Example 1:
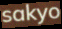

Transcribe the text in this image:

sakyo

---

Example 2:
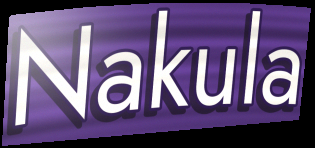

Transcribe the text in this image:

Nakula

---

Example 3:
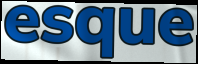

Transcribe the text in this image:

esque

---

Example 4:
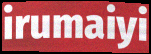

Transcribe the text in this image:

irumaiyi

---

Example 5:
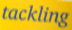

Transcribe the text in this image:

tackling